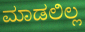
ಮಾಡಲಿಲ್ಲ